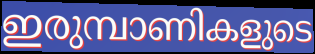
ഇരുമ്പാണികളുടെ